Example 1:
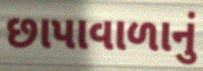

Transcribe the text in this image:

છાપાવાળાનું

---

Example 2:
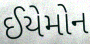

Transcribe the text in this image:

ઈયેમોન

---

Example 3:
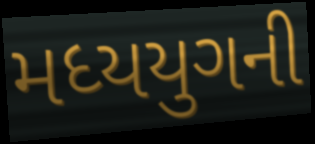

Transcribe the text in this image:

મધ્યયુગની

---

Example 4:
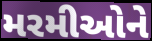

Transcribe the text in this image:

મરમીઓને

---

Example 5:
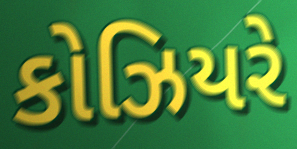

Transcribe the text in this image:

કોઝિયરે